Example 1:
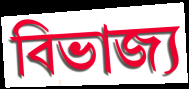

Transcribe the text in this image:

বিভাজ্য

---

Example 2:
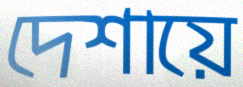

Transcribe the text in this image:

দেশায়ে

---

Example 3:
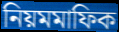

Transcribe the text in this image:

নিয়মমাফিক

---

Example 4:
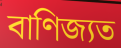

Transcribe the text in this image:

বাণিজ্যত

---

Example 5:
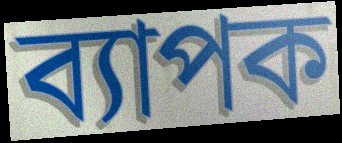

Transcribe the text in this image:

ব্যাপক